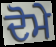
ਦੋਮੇ